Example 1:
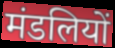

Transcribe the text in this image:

मंडलियों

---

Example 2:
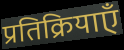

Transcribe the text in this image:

प्रतिक्रियाएँ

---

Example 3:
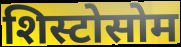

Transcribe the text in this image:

शिस्टोसोम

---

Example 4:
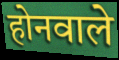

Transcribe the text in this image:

होनवाले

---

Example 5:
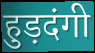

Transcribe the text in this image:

हुड़दंगी